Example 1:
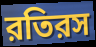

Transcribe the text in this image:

রতিরস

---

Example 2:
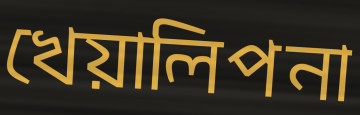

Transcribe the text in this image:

খেয়ালিপনা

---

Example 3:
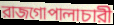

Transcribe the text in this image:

রাজগোপালাচারী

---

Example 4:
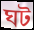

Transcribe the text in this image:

ঘট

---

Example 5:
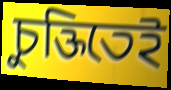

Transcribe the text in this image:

চুক্তিতেই